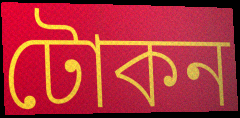
টোকন